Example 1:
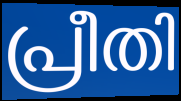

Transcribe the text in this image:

പ്രീതി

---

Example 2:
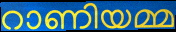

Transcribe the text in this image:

റാണിയമ്മ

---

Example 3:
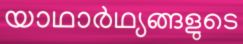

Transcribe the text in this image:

യാഥാർഥ്യങ്ങളുടെ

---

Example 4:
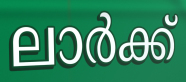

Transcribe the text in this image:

ലാർക്ക്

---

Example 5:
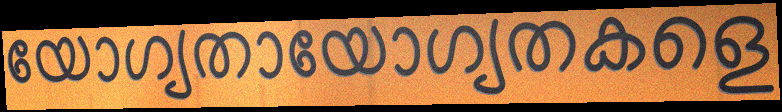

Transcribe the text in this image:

യോഗ്യതായോഗ്യതകളെ